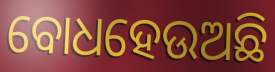
ବୋଧହେଉଅଛି